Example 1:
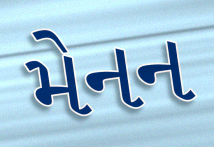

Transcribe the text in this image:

મેનન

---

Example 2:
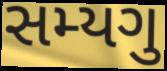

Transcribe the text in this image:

સમ્યગુ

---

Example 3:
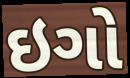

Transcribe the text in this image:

ઇગો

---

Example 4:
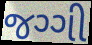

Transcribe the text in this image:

જગ્ગી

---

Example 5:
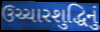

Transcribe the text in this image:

ઉચ્ચારશુદ્ધિનું